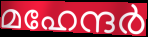
മഹേന്ദർ